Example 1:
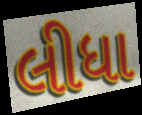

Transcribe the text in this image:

લીધા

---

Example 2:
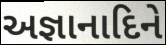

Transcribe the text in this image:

અજ્ઞાનાદિને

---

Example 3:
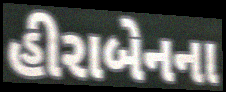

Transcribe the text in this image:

હીરાબેનના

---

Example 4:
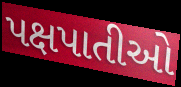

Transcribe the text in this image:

પક્ષપાતીઓ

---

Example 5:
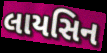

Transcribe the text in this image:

લાયસિન